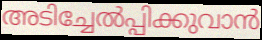
അടിച്ചേൽപ്പിക്കുവാൻ